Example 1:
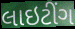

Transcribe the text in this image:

લાઇટીંગ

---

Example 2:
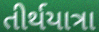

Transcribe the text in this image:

તીર્થયાત્રા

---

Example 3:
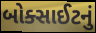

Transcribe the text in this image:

બોક્સાઈટનું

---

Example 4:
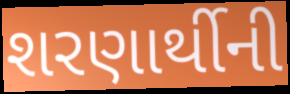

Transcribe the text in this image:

શરણાર્થીની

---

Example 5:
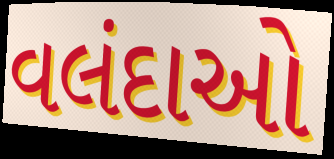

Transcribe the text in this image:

વલંદાઓ